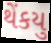
થેંકયુ